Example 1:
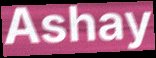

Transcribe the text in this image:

Ashay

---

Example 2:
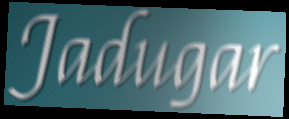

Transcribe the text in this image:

Jadugar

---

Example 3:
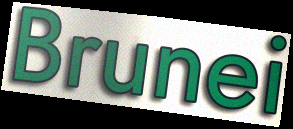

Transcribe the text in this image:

Brunei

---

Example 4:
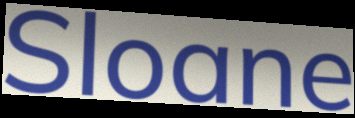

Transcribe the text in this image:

Sloane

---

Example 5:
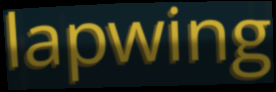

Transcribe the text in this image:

lapwing